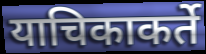
याचिकाकर्ते